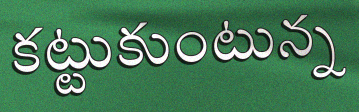
కట్టుకుంటున్న